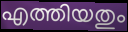
എത്തിയതും